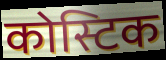
कोस्टिक